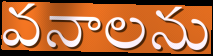
వనాలను